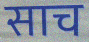
साच